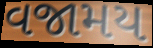
વજામય